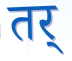
तर्